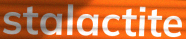
stalactite